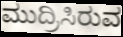
ಮುದ್ರಿಸಿರುವ